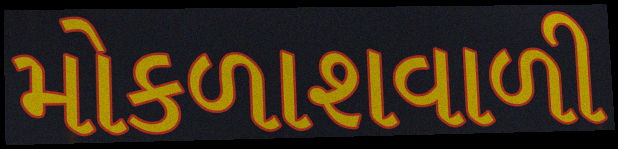
મોકળાશવાળી